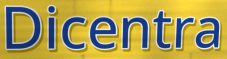
Dicentra